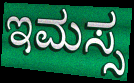
ಇಮಸ್ಸ